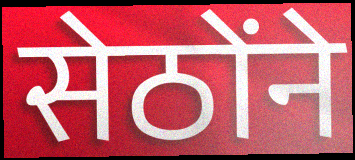
सेठोंने